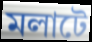
মলাটে